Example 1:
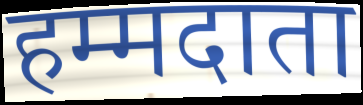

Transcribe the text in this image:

हम्मदाता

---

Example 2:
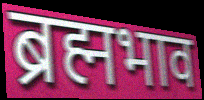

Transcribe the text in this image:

ब्रह्मभाव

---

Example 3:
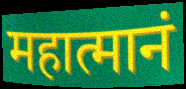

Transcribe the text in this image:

महात्मानं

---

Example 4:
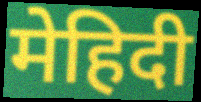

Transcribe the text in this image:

मेहिदी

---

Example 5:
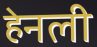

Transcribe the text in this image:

हेनली